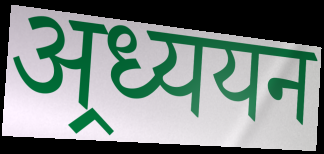
अ्रध्ययन